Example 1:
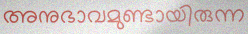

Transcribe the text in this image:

അനുഭാവമുണ്ടായിരുന്ന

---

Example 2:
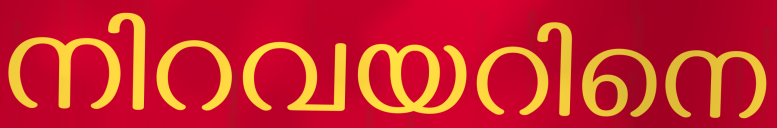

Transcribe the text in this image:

നിറവയറിനെ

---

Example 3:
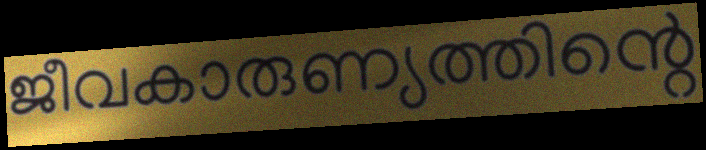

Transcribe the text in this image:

ജീവകാരുണ്യത്തിന്റെ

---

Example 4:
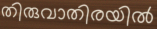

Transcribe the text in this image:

തിരുവാതിരയിൽ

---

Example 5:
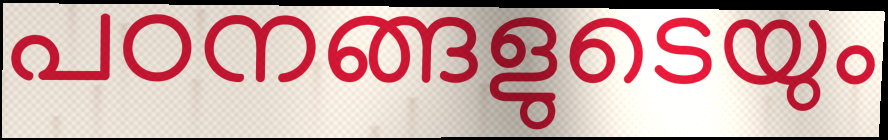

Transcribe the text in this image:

പഠനങ്ങളുടെയും